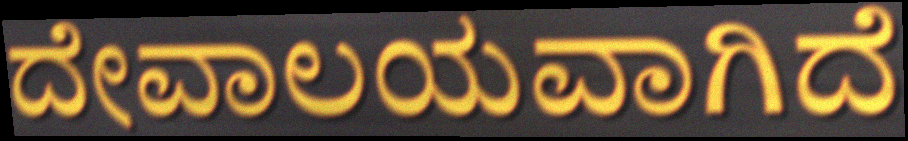
ದೇವಾಲಯವಾಗಿದೆ